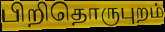
பிறிதொருபுறம்